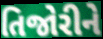
તિજોરીને